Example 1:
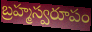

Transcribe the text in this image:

బ్రహ్మస్వరూపం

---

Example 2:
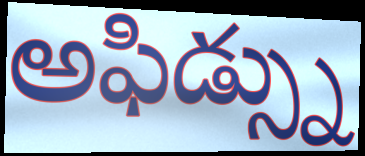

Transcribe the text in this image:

అఫిడ్స్ను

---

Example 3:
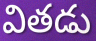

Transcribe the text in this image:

వితడు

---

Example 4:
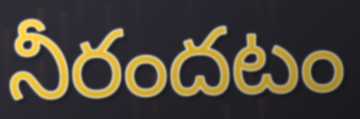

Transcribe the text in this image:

నీరందటం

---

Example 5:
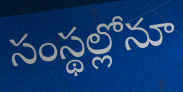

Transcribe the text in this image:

సంస్థల్లోనూ